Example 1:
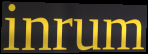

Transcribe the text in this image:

inrum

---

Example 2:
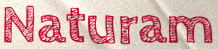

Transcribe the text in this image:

Naturam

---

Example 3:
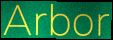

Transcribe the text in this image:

Arbor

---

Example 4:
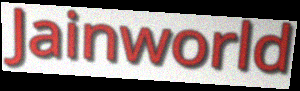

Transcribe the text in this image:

Jainworld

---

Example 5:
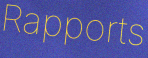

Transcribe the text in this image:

Rapports